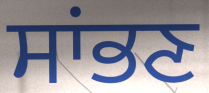
ਸਾਂਭਣ